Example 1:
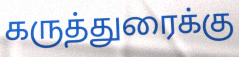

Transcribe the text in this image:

கருத்துரைக்கு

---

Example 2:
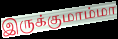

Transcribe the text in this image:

இருக்குமாம்மா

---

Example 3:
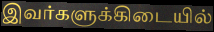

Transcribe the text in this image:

இவர்களுக்கிடையில்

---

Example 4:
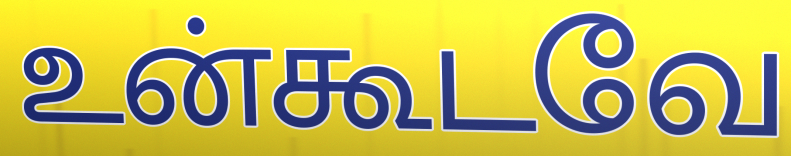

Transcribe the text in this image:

உன்கூடவே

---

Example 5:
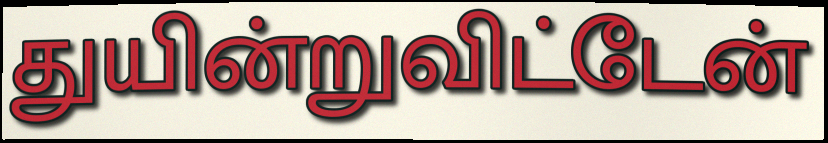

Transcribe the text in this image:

துயின்றுவிட்டேன்